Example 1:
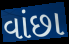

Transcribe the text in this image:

વાંછા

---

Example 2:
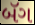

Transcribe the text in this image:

બૅગ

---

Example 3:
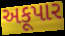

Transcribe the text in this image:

અકૂપાર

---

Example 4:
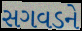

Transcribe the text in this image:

સગવડને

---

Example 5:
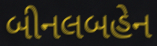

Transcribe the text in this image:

બીનલબહેન